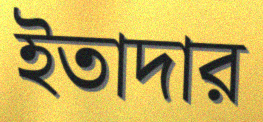
ইতাদার